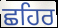
ਛਹਿਰ